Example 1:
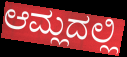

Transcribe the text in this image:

ಆಮ್ಲದಲ್ಲಿ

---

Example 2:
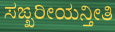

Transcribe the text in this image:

ಸಙ್ಖರೀಯನ್ತೀತಿ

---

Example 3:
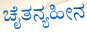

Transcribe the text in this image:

ಚೈತನ್ಯಹೀನ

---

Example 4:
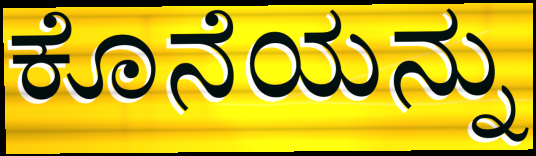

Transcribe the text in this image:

ಕೊನೆಯನ್ನು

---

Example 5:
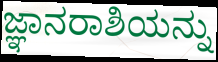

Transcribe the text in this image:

ಜ್ಞಾನರಾಶಿಯನ್ನು